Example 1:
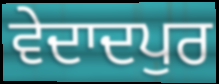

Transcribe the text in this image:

ਵੇਦਾਦਪੁਰ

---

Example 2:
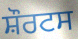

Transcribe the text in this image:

ਸ਼ੌਰਟਸ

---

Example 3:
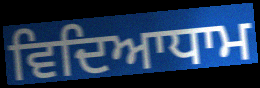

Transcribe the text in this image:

ਵਿਦਿਆਧਾਮ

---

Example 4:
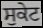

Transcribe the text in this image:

ਸੁਕੇਟ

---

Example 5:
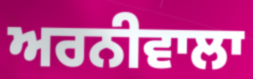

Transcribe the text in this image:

ਅਰਨੀਵਾਲਾ